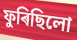
ফুৰিছিলো